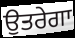
ਉਤਰੇਗਾ